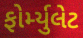
ફોર્મ્યુલેટ